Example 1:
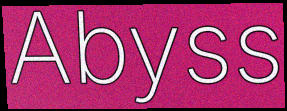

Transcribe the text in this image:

Abyss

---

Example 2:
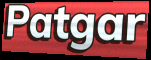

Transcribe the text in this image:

Patgar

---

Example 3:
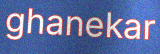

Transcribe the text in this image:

ghanekar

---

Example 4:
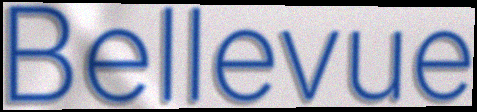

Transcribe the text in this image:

Bellevue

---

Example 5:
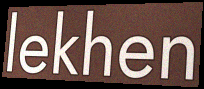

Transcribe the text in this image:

lekhen